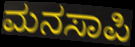
ಮನಸಾಪಿ